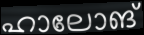
ഹാലോങ്